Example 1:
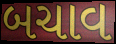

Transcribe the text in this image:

બચાવ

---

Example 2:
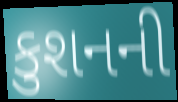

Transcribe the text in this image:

કુશનની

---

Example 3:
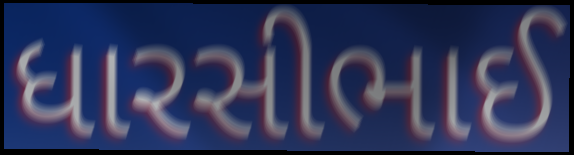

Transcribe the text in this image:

ધારસીભાઈ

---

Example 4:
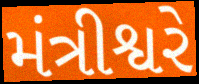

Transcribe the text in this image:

મંત્રીશ્વરે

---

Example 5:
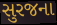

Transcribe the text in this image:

સુરજના